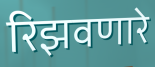
रिझवणारे